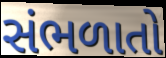
સંભળાતો